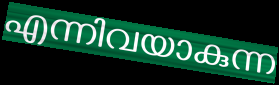
എന്നിവയാകുന്ന